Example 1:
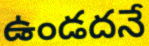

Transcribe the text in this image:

ఉండదనే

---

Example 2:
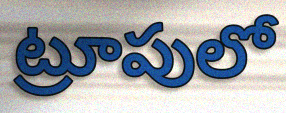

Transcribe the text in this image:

ట్రూపులో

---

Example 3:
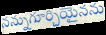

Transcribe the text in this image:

నన్నుగూర్చియైనను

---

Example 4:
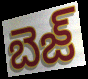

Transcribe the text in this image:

బెజ్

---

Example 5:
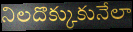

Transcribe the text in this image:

నిలదొక్కుకునేలా